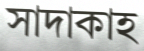
সাদাকাহ